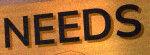
NEEDS